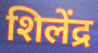
शिलेंद्र